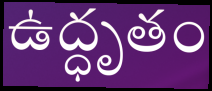
ఉద్ధృతం